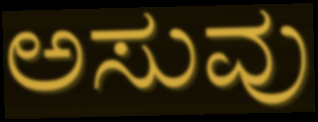
ಅಸುವು